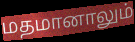
மதமானாலும்